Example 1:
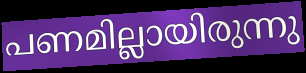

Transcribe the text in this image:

പണമില്ലായിരുന്നു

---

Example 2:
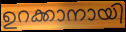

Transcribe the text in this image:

ഉറക്കാനായി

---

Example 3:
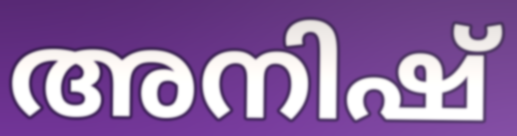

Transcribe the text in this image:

അനിഷ്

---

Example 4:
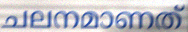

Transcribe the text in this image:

ചലനമാണത്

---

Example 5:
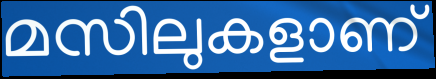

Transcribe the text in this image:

മസിലുകളാണ്